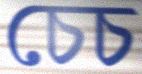
চেচ